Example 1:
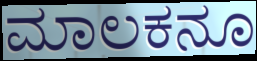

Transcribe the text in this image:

ಮಾಲಕನೂ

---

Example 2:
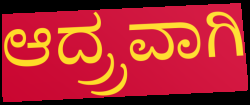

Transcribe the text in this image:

ಆದ್ರ್ರವಾಗಿ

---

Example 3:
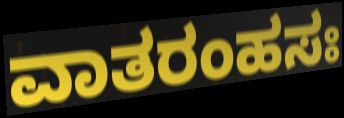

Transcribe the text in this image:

ವಾತರಂಹಸಃ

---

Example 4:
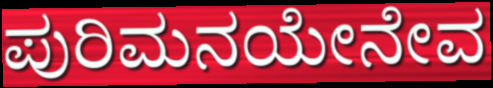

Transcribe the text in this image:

ಪುರಿಮನಯೇನೇವ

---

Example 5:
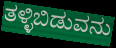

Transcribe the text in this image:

ತಳ್ಳಿಬಿಡುವನು